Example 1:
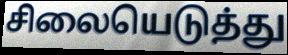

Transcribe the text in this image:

சிலையெடுத்து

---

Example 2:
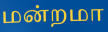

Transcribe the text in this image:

மன்றமா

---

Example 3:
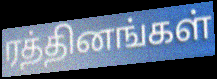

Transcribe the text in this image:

ரத்தினங்கள்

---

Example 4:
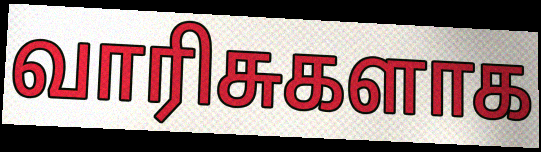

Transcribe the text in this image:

வாரிசுகளாக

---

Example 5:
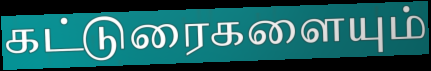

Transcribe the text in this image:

கட்டுரைகளையும்